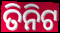
ତିନିଟ